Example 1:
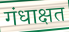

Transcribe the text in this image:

गंधाक्षत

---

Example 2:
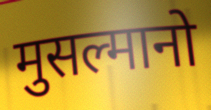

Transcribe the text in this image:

मुसल्मानो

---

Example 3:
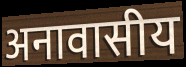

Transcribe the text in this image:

अनावासीय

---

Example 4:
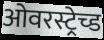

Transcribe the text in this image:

ओवरस्ट्रेच्ड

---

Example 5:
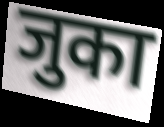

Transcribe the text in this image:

जुका